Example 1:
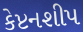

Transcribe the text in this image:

કેપ્ટનશીપ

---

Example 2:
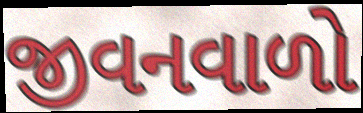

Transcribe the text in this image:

જીવનવાળો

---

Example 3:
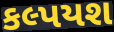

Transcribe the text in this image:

કલ્પયશ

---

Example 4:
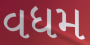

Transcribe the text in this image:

વધમ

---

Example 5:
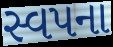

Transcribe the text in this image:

સ્વપના